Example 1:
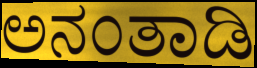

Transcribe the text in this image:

ಅನಂತಾಡಿ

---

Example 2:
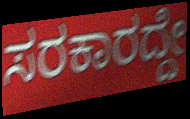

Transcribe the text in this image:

ಸರಕಾರದ್ದೇ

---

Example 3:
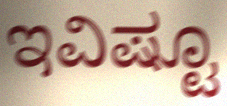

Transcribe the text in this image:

ಇವಿಷ್ಟೂ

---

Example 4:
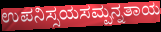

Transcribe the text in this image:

ಉಪನಿಸ್ಸಯಸಮ್ಪನ್ನತಾಯ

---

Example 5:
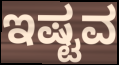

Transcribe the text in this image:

ಇಷ್ಟವ